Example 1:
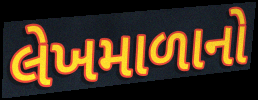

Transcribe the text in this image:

લેખમાળાનો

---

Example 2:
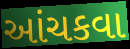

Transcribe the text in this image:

આંચકવા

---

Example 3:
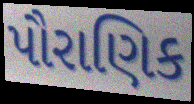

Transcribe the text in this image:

પૌરાણિક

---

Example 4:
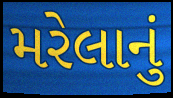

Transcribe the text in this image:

મરેલાનું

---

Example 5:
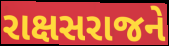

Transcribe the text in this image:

રાક્ષસરાજને